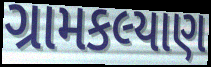
ગ્રામકલ્યાણ